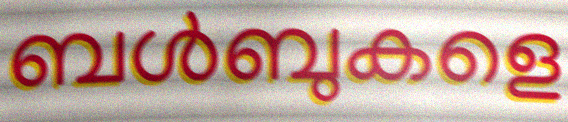
ബൾബുകളെ